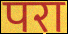
परा